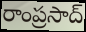
రాంప్రసాద్